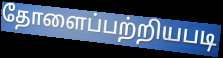
தோளைப்பற்றியபடி